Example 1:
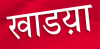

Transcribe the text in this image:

खाडय़ा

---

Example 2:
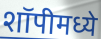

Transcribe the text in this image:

शॉपीमध्ये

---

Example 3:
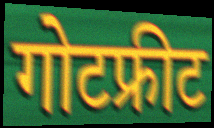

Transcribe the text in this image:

गोटफ्रीट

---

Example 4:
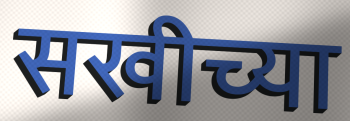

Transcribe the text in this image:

सखीच्या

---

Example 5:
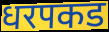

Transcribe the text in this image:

धरपकड